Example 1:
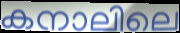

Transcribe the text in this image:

കനാലിലെ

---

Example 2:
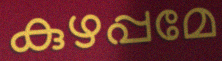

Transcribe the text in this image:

കുഴപ്പമേ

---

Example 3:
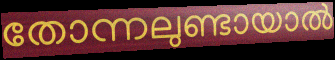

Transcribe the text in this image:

തോന്നലുണ്ടായാൽ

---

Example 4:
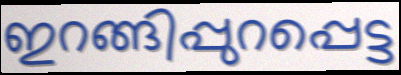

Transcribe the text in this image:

ഇറങ്ങിപ്പുറപ്പെട്ട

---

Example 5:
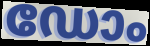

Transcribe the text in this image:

ഡോം